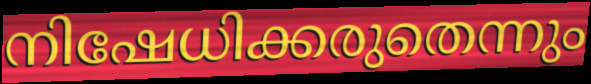
നിഷേധിക്കരുതെന്നും